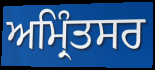
ਅਮ੍ਰਿੰਤਸਰ